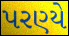
પરણ્યે